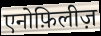
एनोफ़िलीज़